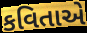
કવિતાએ